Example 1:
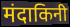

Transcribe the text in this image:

मंदाकिनी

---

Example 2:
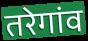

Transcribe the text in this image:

तरेगांव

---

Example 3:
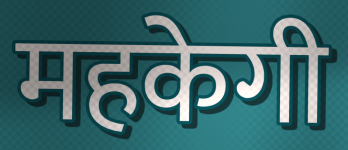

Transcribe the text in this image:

महकेगी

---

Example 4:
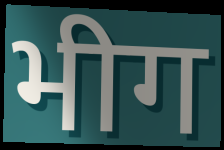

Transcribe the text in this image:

भीग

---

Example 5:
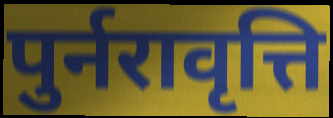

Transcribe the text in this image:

पुर्नरावृत्ति